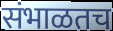
संभाळतच